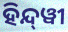
ହିନ୍ଦ୍‍ୱୀ